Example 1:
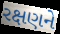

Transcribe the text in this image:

રક્ષણને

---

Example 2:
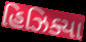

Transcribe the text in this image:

હિઝિક્યા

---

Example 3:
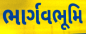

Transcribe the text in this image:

ભાર્ગવભૂમિ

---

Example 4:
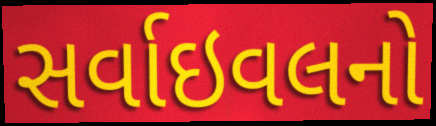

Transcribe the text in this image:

સર્વાઇવલનો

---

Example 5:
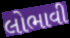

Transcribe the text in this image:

લોભાવી